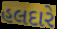
હલદારે